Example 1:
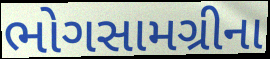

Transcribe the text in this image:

ભોગસામગ્રીના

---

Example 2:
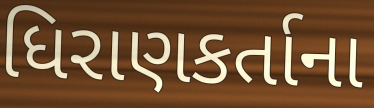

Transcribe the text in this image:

ધિરાણકર્તાના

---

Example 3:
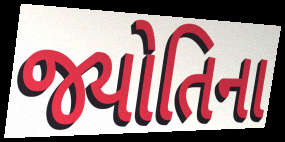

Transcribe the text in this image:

જ્યોતિના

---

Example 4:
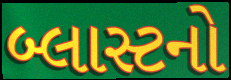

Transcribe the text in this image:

બ્લાસ્ટનો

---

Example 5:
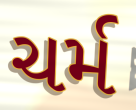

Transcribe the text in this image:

ચર્મ